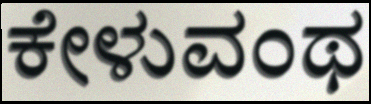
ಕೇಳುವಂಥ